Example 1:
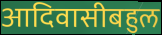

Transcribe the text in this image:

आदिवासीबहुल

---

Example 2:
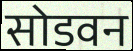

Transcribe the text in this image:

सोडवन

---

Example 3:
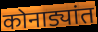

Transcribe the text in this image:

कोनाड्यांत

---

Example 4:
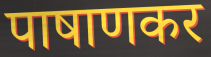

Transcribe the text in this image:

पाषाणकर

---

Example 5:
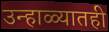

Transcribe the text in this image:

उन्हाळ्यातही